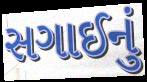
સગાઈનું